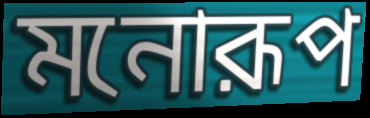
মনোরূপ